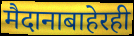
मैदानाबाहेरही